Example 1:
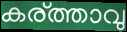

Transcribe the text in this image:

കര്ത്താവു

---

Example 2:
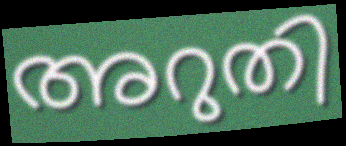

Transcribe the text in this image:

അറുതി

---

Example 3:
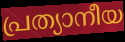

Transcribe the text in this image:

പ്രത്യാനീയ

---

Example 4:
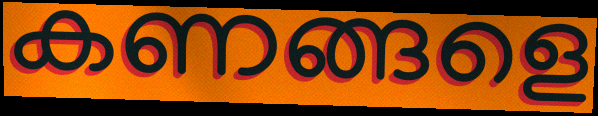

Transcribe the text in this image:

കണങ്ങളെ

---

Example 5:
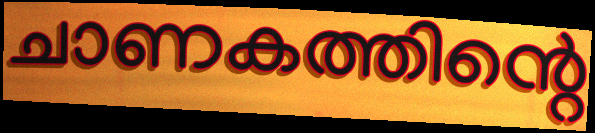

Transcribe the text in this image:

ചാണകത്തിന്റെ